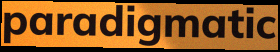
paradigmatic